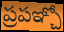
ప్రపఞ్చో